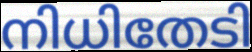
നിധിതേടി